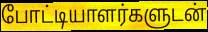
போட்டியாளர்களுடன்